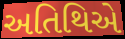
અતિથિએ